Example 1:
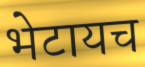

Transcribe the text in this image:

भेटायच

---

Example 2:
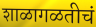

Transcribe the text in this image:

शाळागळतीचं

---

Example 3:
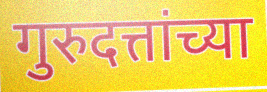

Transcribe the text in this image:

गुरुदत्तांच्या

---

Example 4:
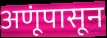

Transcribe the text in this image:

अणूंपासून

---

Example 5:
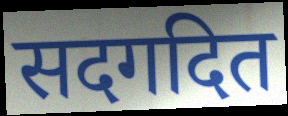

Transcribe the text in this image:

सदगदित